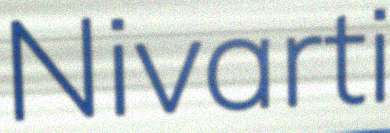
Nivarti